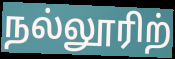
நல்லூரிற்